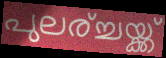
പുലര്ച്ചയ്ക്ക്